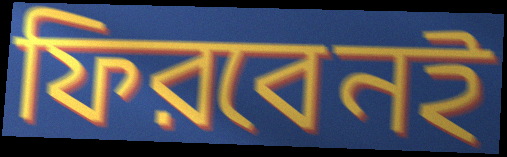
ফিরবেনই